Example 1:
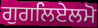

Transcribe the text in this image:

ਗੁਗਲਿਏਲਮੋ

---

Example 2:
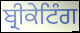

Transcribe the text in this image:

ਬ੍ਰੀਕੇਟਿੰਗ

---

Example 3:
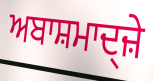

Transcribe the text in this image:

ਅਬਾਸ਼ਮਾਦ੍ਜ਼ੇ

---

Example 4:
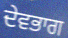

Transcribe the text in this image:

ਦੇਵਭਾਗ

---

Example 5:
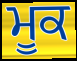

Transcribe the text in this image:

ਮੂਕ